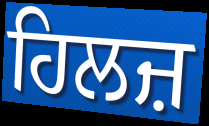
ਹਿਲਜ਼